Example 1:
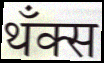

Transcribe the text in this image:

थँक्स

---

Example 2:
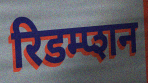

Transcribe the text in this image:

रिडम्प्शन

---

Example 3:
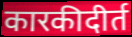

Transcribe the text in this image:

कारकीदीर्त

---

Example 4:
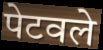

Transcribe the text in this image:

पेटवले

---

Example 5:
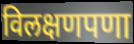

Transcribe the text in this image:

विलक्षणपणा